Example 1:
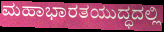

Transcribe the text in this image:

ಮಹಾಭಾರತಯುದ್ಧದಲ್ಲಿ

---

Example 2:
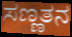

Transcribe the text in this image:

ಸಣ್ಣತನ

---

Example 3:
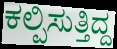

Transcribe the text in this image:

ಕಲ್ಪಿಸುತ್ತಿದ್ದ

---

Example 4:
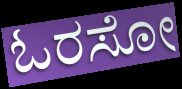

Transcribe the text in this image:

ಓರಸೋ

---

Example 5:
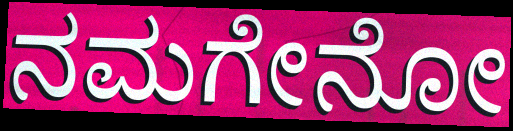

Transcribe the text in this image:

ನಮಗೇನೋ